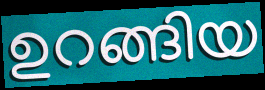
ഉറങ്ങിയ